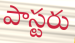
పాస్టరు